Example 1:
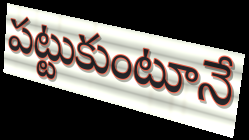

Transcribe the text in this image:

పట్టుకుంటూనే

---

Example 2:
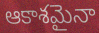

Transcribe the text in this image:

ఆకాశమైనా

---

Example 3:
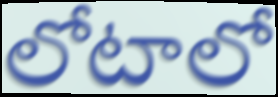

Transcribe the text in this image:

లోటాలో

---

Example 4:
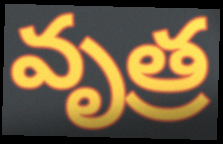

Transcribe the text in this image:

వృత్ర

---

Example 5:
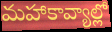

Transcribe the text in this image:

మహాకావ్యాల్లో